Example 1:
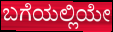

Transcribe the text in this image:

ಬಗೆಯಲ್ಲಿಯೇ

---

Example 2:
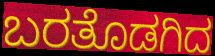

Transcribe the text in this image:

ಬರತೊಡಗಿದ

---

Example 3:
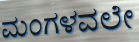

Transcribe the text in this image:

ಮಂಗಳವಲೇ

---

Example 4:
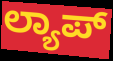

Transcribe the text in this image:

ಲ್ಯಾಪ್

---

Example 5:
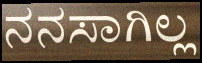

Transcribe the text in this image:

ನನಸಾಗಿಲ್ಲ